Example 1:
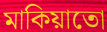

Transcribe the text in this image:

মাকিয়াতো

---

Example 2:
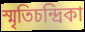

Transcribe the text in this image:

স্মৃতিচন্দ্রিকা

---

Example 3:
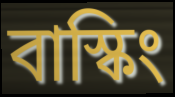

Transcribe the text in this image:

বাস্কিং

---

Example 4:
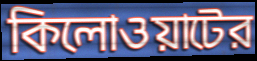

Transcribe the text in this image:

কিলোওয়াটের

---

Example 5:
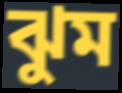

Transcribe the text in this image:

ঝুম